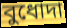
বুধোদা